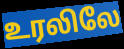
உரலிலே